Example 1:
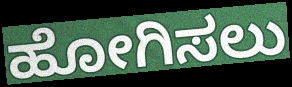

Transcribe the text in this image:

ಹೋಗಿಸಲು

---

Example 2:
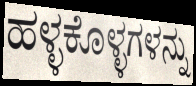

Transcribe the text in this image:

ಹಳ್ಳಕೊಳ್ಳಗಳನ್ನು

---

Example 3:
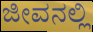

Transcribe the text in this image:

ಜೀವನಲ್ಲಿ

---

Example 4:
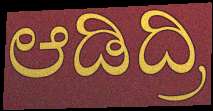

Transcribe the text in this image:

ಆಡಿದ್ರಿ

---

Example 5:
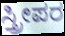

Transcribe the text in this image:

ಸ್ತ್ರೀಪರ